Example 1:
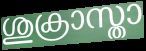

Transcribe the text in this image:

ശുക്രാസ്താ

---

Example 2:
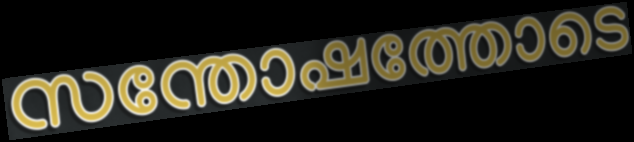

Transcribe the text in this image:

സന്തോഷത്തോടെ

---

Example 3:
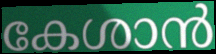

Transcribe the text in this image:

കേശാൻ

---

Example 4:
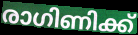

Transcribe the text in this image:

രാഗിണിക്ക്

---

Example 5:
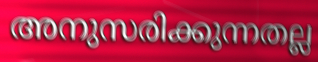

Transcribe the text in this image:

അനുസരിക്കുന്നതല്ല